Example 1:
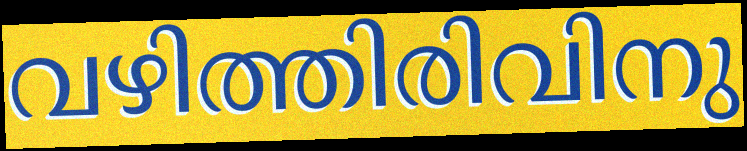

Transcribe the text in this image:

വഴിത്തിരിവിനു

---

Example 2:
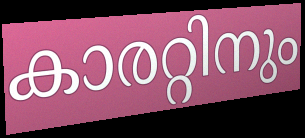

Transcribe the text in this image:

കാരറ്റിനും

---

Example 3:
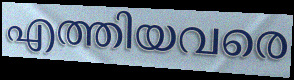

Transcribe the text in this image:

എത്തിയവരെ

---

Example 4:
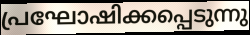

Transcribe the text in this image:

പ്രഘോഷിക്കപ്പെടുന്നു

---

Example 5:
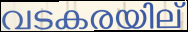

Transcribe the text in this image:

വടകരയില്